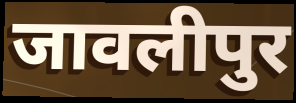
जावलीपुर